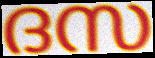
ദസ